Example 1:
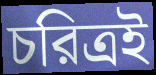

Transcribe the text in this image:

চরিত্রই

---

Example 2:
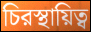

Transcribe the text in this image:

চিরস্থায়িত্ব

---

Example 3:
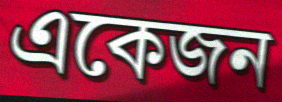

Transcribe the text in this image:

একেজন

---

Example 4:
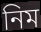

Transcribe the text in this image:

নিম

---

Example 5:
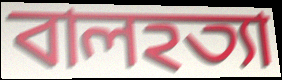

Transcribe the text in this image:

বালহত্যা